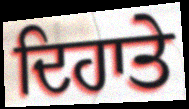
ਦਿਹਾਤੇ